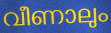
വീണാലും